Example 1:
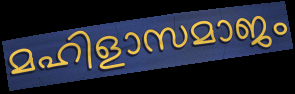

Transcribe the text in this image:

മഹിളാസമാജം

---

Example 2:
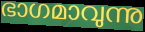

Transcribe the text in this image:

ഭാഗമാവുന്നു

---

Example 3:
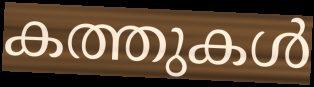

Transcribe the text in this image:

കത്തുകൾ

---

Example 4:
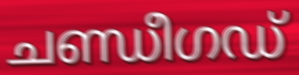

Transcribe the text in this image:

ചണ്ഡീഗഡ്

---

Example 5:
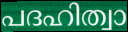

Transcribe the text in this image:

പദഹിത്വാ